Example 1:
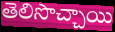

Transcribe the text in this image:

తెలిసొచ్చాయి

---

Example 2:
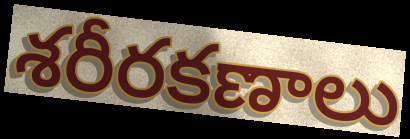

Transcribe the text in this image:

శరీరకణాలు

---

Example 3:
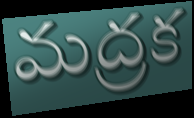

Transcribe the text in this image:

మద్రక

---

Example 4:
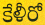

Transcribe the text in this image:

కేళీరో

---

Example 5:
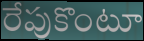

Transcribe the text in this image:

రేపుకొంటూ